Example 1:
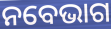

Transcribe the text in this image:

ନବେଭାଗ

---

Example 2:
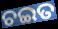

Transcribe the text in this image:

ଚଇତ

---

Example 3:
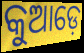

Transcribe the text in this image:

କୁଆଡ଼େ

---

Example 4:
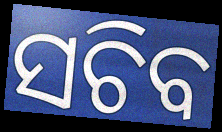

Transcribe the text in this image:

ସଚିବ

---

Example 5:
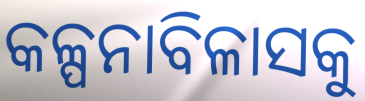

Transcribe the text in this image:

କଳ୍ପନାବିଳାସକୁ